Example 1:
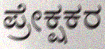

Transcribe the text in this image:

ಪ್ರೇಕ್ಷಕರ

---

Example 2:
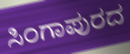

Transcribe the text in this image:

ಸಿಂಗಾಪುರದ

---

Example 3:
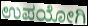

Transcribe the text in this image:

ಉಪಯೋಗಿ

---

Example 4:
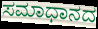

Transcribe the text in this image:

ಸಮಾಧಾನದ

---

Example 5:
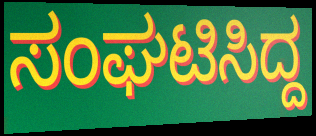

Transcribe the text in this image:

ಸಂಘಟಿಸಿದ್ದ